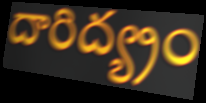
దారిద్య్రం